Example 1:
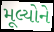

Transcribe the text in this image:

મૂલ્યોને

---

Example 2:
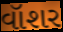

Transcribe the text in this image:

વૉશર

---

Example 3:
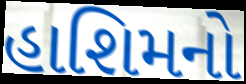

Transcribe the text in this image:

હાશિમનો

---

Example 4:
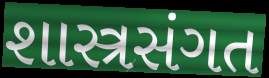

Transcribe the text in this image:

શાસ્ત્રસંગત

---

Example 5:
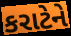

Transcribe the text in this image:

કરાટેને